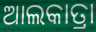
ଆଲକାତ୍ରା